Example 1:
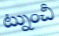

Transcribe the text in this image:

ట్నుంచీ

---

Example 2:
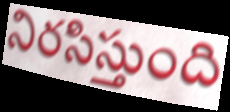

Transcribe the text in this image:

నిరసిస్తుంది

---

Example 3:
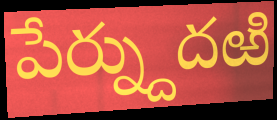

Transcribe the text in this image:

పేర్న్దుదఱి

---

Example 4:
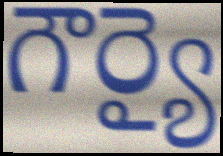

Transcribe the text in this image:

గౌర్యై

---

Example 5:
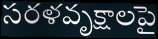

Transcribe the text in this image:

సరళవృక్షాలపై